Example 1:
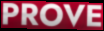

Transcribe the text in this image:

PROVE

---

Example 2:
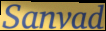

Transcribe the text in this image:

Sanvad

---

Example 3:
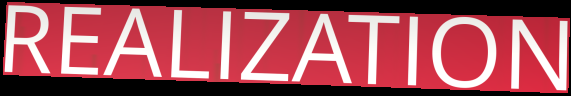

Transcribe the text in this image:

REALIZATION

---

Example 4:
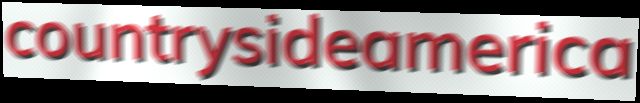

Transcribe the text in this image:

countrysideamerica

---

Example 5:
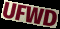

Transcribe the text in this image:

UFWD